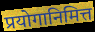
प्रयोगानिमित्त